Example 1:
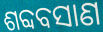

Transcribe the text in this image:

ଶବ୍ଦବସାଣ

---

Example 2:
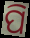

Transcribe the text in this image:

ପି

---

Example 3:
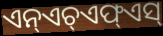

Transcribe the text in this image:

ଏନ୍ଏଚ୍ଏଫ୍ଏସ୍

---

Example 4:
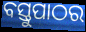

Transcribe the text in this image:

ବସ୍ତୁପାଠର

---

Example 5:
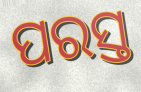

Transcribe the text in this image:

ପରସ୍ତ